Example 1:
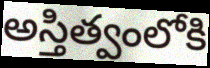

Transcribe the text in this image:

అస్తిత్వంలోకి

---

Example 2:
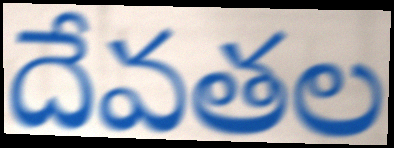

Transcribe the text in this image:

దేవతల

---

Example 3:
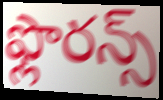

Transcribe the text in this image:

ఫ్లొరన్స్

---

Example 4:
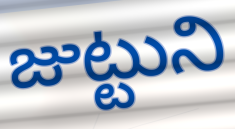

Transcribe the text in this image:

జుట్టుని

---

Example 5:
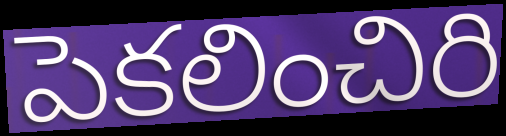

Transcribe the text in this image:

పెకలించిరి